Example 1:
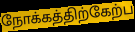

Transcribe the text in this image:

நோக்கத்திற்கேற்ப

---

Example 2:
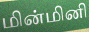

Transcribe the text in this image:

மின்மினி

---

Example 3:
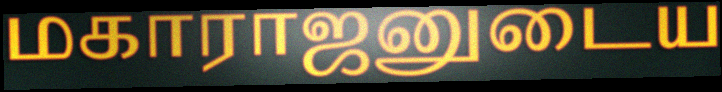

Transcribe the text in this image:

மகாராஜனுடைய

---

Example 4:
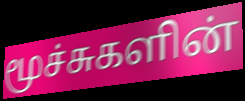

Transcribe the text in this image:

மூச்சுகளின்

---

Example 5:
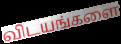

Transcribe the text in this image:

விடயங்களை